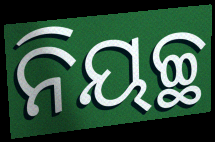
ନିୟଚ୍ଛ